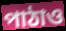
পাঠাও